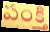
పంక్తి